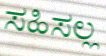
ಸಹಿಸಲ್ಲ